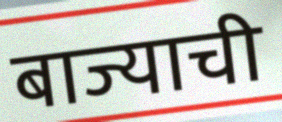
बाज्याची